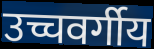
उच्चवर्गीय